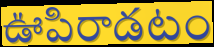
ఊపిరాడటం